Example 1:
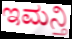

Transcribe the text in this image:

ಇಮನ್ತಿ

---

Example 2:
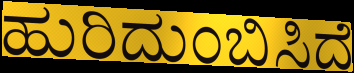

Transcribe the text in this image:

ಹುರಿದುಂಬಿಸಿದೆ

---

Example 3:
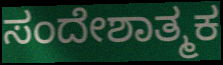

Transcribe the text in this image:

ಸಂದೇಶಾತ್ಮಕ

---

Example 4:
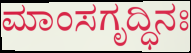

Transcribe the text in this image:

ಮಾಂಸಗೃದ್ಧಿನಃ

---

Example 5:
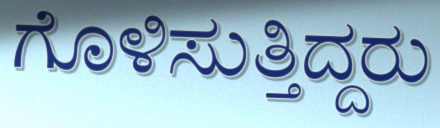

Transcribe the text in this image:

ಗೊಳಿಸುತ್ತಿದ್ದರು